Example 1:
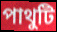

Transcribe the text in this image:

পাথুটি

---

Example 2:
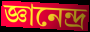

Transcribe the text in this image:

জ্ঞানেন্দ্র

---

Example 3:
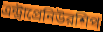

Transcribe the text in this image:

এন্ট্রাপ্রেনিউরশিপ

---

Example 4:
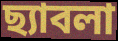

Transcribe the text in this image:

ছ্যাবলা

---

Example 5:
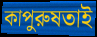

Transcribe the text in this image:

কাপুরুষতাই